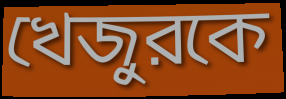
খেজুরকে